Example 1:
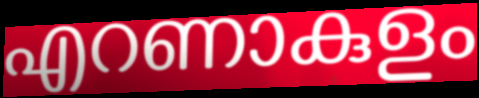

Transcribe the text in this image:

എറണാകുളം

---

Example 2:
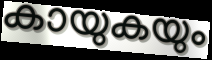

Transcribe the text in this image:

കായുകയും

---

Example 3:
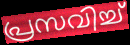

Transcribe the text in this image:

പ്രസവിച്ച്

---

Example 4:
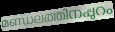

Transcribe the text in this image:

മണ്ഡലത്തിനപ്പുറം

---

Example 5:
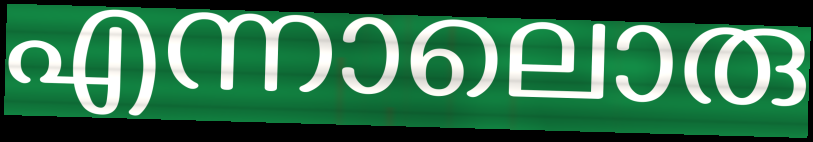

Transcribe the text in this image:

എന്നാലൊരു